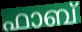
ഫാബ്